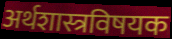
अर्थशास्त्रविषयक